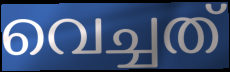
വെച്ചത്